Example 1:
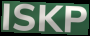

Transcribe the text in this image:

ISKP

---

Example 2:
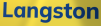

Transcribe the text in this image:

Langston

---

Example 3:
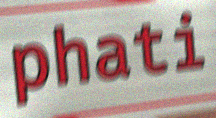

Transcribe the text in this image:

phati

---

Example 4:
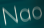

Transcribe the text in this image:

Nao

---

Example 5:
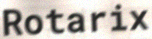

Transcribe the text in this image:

Rotarix